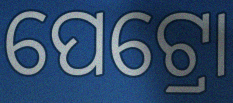
ପେଟ୍ରୋ